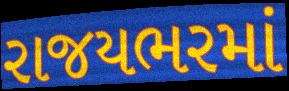
રાજયભરમાં